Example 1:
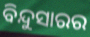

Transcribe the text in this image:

ବିନ୍ଦୁସାରର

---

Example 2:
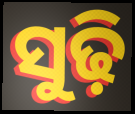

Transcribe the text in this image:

ସୁଢ଼ି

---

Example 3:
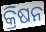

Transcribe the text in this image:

କ୍ରିଷନ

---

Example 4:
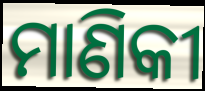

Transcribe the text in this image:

ମାଣିକୀ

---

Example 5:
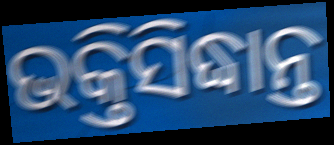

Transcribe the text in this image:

ଭକ୍ତିସିଦ୍ଧାନ୍ତ